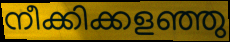
നീക്കിക്കളഞ്ഞു